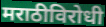
मराठीविरोधी